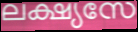
ലക്ഷ്യസേ